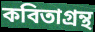
কবিতাগ্রন্থ